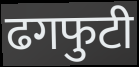
ढगफुटी